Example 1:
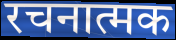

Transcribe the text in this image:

रचनात्मक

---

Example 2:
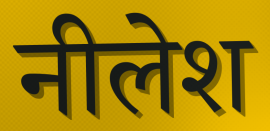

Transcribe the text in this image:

नीलेश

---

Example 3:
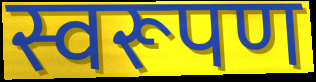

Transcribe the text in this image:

स्वरूपण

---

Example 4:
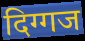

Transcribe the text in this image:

दिग्गज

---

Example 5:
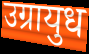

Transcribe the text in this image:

उग्रायुध